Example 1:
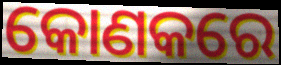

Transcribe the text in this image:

କୋଣକରେ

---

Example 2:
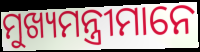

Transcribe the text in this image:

ମୁଖ୍ୟମନ୍ତ୍ରୀମାନେ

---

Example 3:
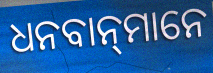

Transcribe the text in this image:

ଧନବାନ୍‍ମାନେ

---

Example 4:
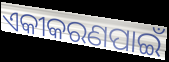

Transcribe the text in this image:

ଏକୀକରଣପାଇଁ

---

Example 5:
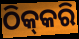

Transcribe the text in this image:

ଠିକ୍‍କରି